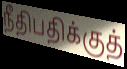
நீதிபதிக்குத்